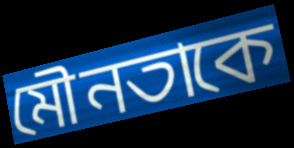
মৌনতাকে